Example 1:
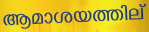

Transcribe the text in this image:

ആമാശയത്തില്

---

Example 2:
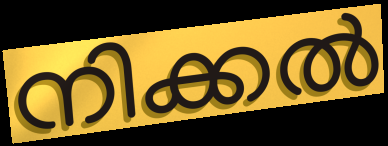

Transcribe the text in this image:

നിക്കൽ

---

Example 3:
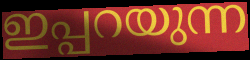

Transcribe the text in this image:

ഇപ്പറയുന്ന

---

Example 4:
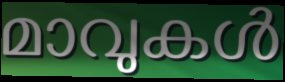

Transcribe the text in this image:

മാവുകൾ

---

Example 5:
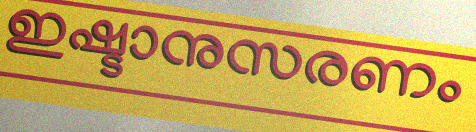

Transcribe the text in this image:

ഇഷ്ടാനുസരണം